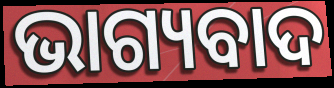
ଭାଗ୍ୟବାଦ